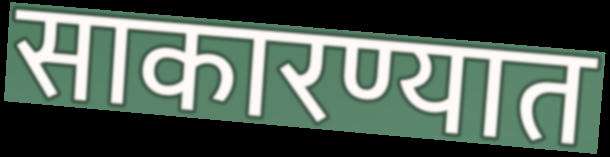
साकारण्यात